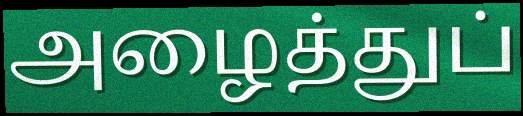
அழைத்துப்